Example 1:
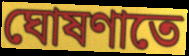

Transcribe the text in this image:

ঘোষণাতে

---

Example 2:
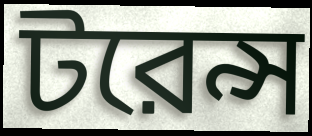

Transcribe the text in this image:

টরেন্স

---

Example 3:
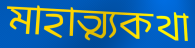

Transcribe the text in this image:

মাহাত্ম্যকথা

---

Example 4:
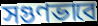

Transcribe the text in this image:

সগুণভাবে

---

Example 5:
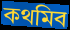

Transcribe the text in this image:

কথমিব